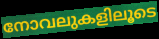
നോവലുകളിലൂടെ